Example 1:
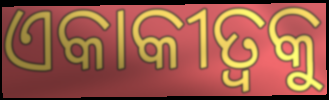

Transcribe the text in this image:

ଏକାକୀତ୍ଵକୁ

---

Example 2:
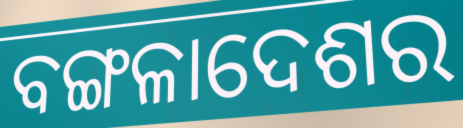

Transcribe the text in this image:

ବଙ୍ଗଳାଦେଶର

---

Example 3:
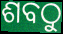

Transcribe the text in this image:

ଶବଠୁ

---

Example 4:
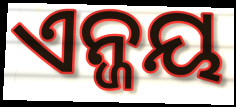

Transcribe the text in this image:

ଏନ୍ଜୟ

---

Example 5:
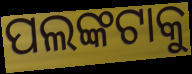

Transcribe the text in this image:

ପଲଙ୍କଟାକୁ